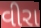
વીરા